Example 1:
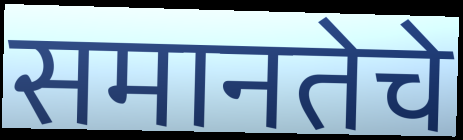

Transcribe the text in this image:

समानतेचे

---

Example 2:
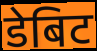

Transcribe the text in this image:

डेबिट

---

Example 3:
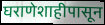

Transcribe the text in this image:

घराणेशाहीपासून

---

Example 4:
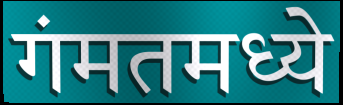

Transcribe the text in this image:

गंमतमध्ये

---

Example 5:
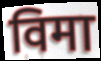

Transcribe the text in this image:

विमा